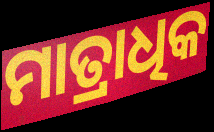
ମାତ୍ରାଧିକ